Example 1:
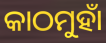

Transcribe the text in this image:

କାଠମୁହାଁ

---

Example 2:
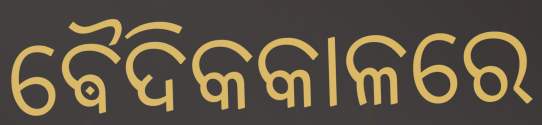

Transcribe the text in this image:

ଵୈଦିକକାଳରେ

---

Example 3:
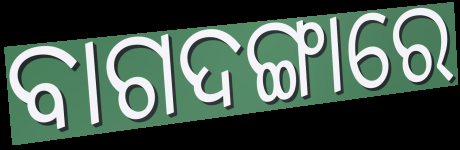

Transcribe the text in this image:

ବାଗଦଙ୍ଗାରେ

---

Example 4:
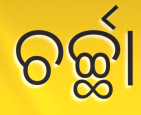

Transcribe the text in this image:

ଚର୍ଚ୍ଛା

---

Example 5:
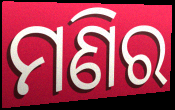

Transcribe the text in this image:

ମଣିର